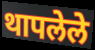
थापलेले